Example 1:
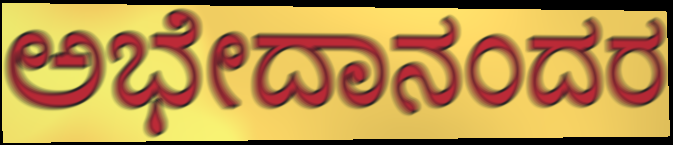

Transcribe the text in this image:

ಅಭೇದಾನಂದರ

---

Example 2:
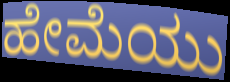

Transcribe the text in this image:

ಹೇಮೆಯು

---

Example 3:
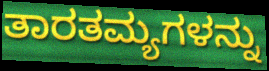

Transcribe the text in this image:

ತಾರತಮ್ಯಗಳನ್ನು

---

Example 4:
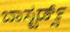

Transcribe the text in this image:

ಬಾಸ್ಟರ್ಡ್ಸ್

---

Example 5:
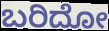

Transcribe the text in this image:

ಬರಿದೋ